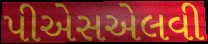
પીએસએલવી